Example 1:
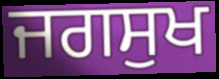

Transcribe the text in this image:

ਜਗਸੁਖ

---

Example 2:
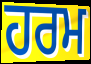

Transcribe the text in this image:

ਹਰਮ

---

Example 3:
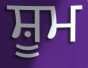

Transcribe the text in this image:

ਸ਼ੂਮ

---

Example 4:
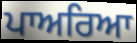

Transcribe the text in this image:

ਪਾਅਰਿਆ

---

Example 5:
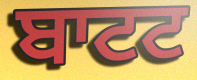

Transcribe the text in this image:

ਬਾਟਟ